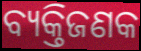
ବ୍ୟକ୍ତିଜଣକ